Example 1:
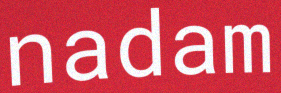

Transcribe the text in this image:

nadam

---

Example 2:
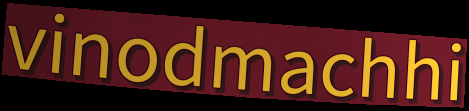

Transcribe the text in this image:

vinodmachhi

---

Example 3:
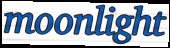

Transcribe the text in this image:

moonlight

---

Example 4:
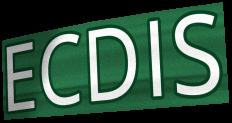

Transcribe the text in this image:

ECDIS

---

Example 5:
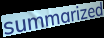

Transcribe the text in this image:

summarized